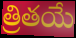
త్రితయే